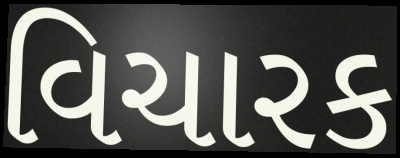
વિચારક